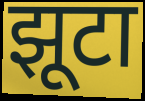
झूटा